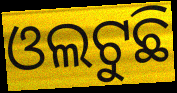
ଓଲଟୁଛି